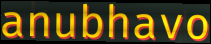
anubhavo